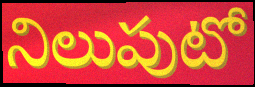
నిలుపుటో